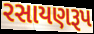
રસાયણરૂપ